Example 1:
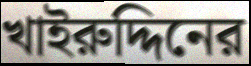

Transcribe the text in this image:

খাইরুদ্দিনের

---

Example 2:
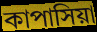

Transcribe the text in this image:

কাপাসিয়া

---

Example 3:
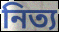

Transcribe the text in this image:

নিত্য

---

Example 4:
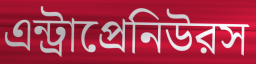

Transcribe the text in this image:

এন্ট্রাপ্রেনিউরস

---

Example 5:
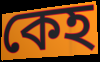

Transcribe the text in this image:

কেহ